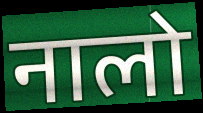
नालो